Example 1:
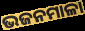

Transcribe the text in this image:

ଭଜନମାଳା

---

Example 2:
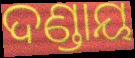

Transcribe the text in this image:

ଦଣ୍ଡାୟ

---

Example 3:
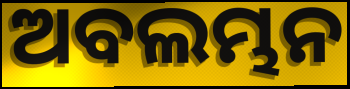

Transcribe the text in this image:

ଅବଲମ୍ଭନ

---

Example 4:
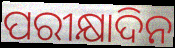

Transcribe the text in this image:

ପରୀକ୍ଷାଦିନ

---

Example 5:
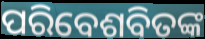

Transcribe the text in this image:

ପରିବେଶବିତଙ୍କ